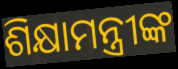
ଶିକ୍ଷାମନ୍ତ୍ରୀଙ୍କ